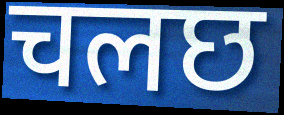
चलछ